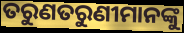
ତରୁଣତରୁଣୀମାନଙ୍କୁ